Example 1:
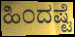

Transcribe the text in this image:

ಹಿಂದಷ್ಟೆ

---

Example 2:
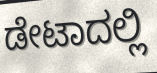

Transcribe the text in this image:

ಡೇಟಾದಲ್ಲಿ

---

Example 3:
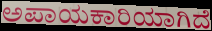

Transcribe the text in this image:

ಅಪಾಯಕಾರಿಯಾಗಿದೆ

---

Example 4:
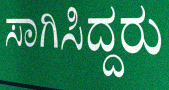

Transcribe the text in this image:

ಸಾಗಿಸಿದ್ದರು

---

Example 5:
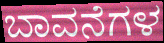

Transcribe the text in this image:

ಬಾವನೆಗಳ